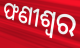
ଫଣୀଶ୍ୱର